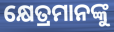
କ୍ଷେତ୍ରମାନଙ୍କୁ